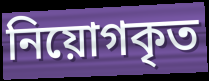
নিয়োগকৃত